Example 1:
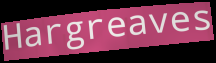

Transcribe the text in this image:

Hargreaves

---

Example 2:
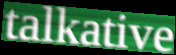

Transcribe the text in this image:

talkative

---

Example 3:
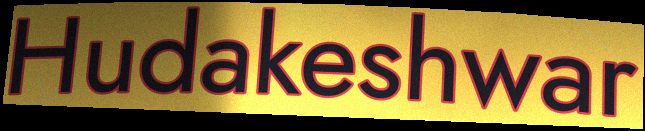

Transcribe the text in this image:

Hudakeshwar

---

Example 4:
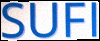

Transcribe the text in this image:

SUFI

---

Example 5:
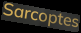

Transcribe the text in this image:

Sarcoptes